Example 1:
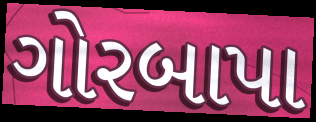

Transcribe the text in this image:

ગોરબાપા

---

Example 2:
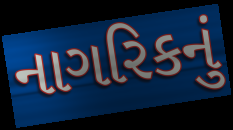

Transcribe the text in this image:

નાગરિકનું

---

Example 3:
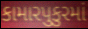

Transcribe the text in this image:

કામારપુકુરમાં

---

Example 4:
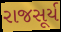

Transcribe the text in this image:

રાજસૂર્ય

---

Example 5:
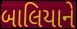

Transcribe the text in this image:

બાલિયાને